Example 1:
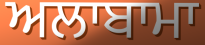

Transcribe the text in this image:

ਅਲਾਬਾਮਾ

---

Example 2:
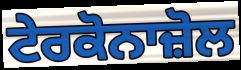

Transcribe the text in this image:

ਟੇਰਕੋਨਾਜ਼ੋਲ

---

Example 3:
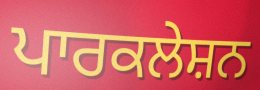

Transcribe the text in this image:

ਪਾਰਕਲੇਸ਼ਨ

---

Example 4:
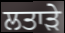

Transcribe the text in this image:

ਲਤਾਡ਼ੇ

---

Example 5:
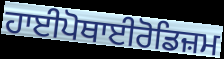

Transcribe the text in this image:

ਹਾਈਪੋਥਾਈਰੋਡਿਜ਼ਮ